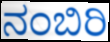
ನಂಬಿರಿ